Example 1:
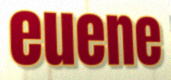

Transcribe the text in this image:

euene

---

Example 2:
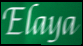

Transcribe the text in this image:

Elaya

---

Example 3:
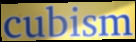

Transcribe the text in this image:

cubism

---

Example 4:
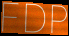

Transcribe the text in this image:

FDP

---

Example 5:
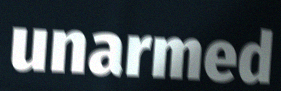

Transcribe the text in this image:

unarmed